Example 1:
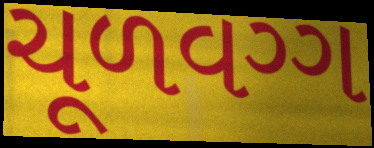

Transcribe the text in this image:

ચૂળવગ્ગ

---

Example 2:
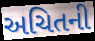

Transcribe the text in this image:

અચિતની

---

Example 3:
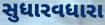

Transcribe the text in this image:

સુધારવધારા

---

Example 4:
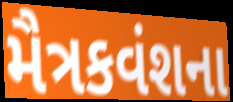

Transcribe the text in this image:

મૈત્રકવંશના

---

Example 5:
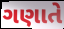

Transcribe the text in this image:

ગણાતે